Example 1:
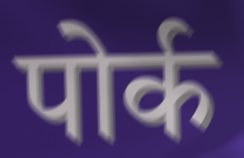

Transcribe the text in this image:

पोर्क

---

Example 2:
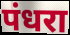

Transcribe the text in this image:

पंधरा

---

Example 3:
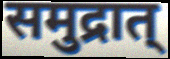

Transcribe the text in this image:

समुद्रात्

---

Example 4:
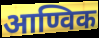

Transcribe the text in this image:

आण्विक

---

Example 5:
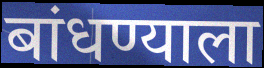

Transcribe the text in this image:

बांधण्याला